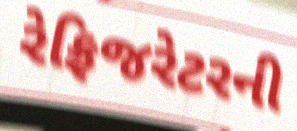
રેફ્રિજરેટરની